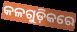
କଳଗୁଡ଼ିକରେ